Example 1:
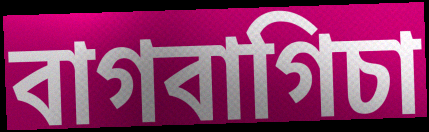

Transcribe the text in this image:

বাগবাগিচা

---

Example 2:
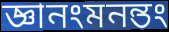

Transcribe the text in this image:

জ্ঞানংমনন্তং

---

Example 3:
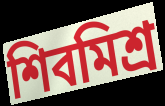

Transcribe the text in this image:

শিবমিশ্র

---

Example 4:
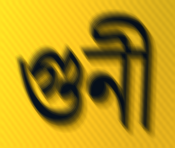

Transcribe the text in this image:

গুনী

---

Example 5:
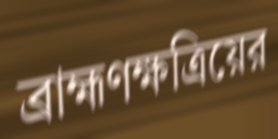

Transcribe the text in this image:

ব্রাহ্মণক্ষত্রিয়ের